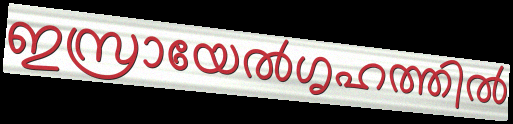
ഇസ്രായേൽഗൃഹത്തിൽ